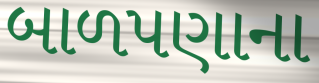
બાળપણાના